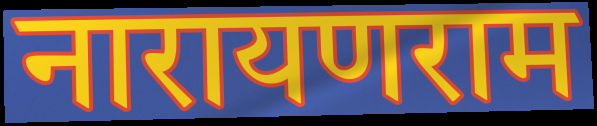
नारायणराम